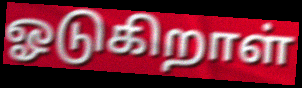
ஓடுகிறாள்